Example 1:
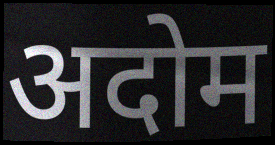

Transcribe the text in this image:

अदोम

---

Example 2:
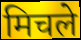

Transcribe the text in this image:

मिचले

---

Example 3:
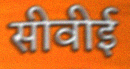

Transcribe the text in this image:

सीवीई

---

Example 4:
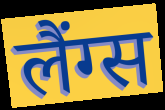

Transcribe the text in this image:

लैंग्स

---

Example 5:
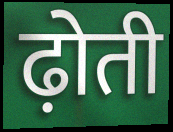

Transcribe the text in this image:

ढ़ोती